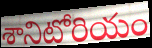
శానిటోరియం